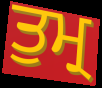
ਤੁਮ੍ਰ